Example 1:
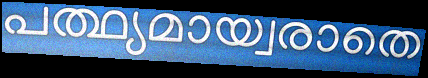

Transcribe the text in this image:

പത്ഥ്യമായ്വരാതെ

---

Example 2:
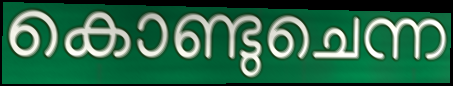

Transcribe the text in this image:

കൊണ്ടുചെന്ന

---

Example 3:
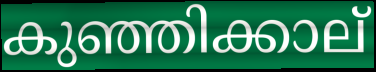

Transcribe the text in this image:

കുഞ്ഞിക്കാല്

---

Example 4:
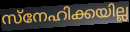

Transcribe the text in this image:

സ്നേഹിക്കയില്ല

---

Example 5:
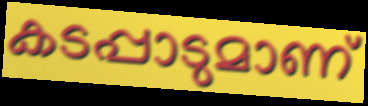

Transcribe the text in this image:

കടപ്പാടുമാണ്